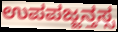
ಉಪಪಜ್ಜನ್ತಸ್ಸ